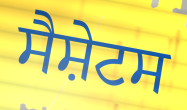
ਸੈਸ਼ੇਟਸ